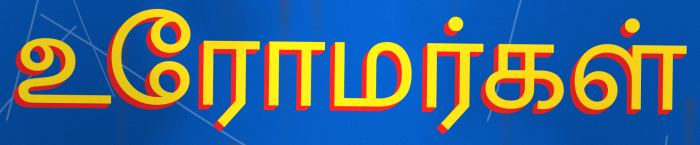
உரோமர்கள்